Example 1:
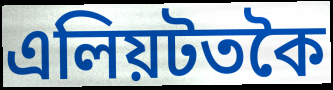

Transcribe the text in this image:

এলিয়টতকৈ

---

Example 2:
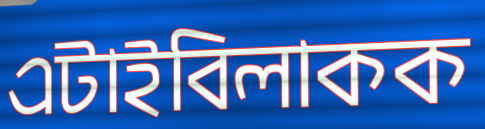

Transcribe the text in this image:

এটাইবিলাকক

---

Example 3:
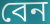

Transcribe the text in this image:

বেন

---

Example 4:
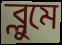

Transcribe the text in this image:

ব্লুমে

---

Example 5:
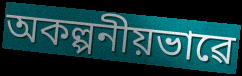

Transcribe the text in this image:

অকল্পনীয়ভাৱে